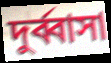
দুর্ব্বাসা